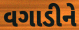
વગાડીને